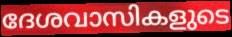
ദേശവാസികളുടെ